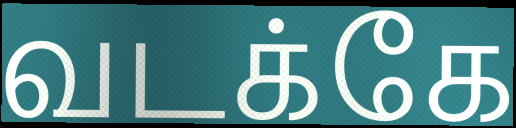
வடக்கே